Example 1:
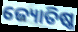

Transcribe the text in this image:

ଜ୍ୟୋତିଷ୍କ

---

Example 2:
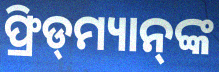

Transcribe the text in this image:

ଫ୍ରିଡ୍‌ମ୍ୟାନ୍‌ଙ୍କ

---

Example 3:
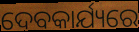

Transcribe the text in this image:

ଦେବକାର୍ଯ୍ୟରେ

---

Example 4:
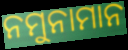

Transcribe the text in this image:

ନମୁନାମାନ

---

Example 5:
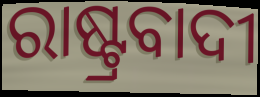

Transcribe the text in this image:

ରାଷ୍ଟ୍ରବାଦୀ